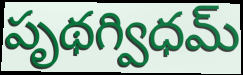
పృథగ్విధమ్